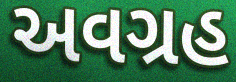
અવગ્રહ